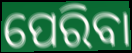
ପେରିବା